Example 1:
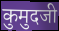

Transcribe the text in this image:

कुमुदजी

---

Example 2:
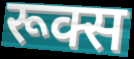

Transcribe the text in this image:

रूक्स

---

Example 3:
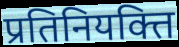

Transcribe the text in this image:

प्रतिनियक्ति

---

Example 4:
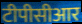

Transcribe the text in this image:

टीपीसीआर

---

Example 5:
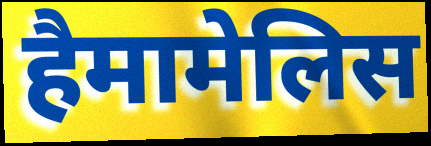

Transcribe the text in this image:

हैमामेलिस